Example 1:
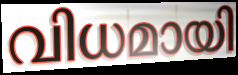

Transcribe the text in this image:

വിധമായി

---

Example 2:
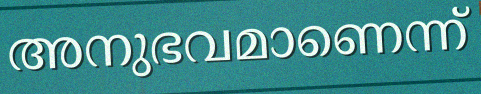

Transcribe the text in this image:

അനുഭവമാണെന്ന്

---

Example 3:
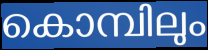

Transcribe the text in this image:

കൊമ്പിലും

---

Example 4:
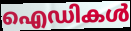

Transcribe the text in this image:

ഐഡികൾ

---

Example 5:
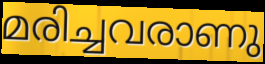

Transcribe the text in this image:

മരിച്ചവരാണു